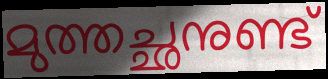
മുത്തച്ഛനുണ്ട്